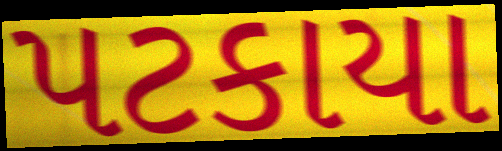
પટકાયા